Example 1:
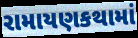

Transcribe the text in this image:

રામાયણકથામાં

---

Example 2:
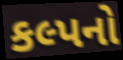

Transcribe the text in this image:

કલ્પનો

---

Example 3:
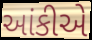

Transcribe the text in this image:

આંકીએ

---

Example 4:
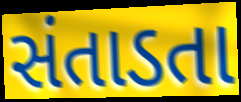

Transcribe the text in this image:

સંતાડતા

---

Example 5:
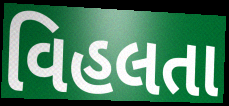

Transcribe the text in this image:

વિહલતા